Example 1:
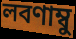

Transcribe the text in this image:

লবণাম্বু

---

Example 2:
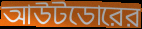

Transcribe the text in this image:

আউটডোরের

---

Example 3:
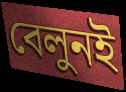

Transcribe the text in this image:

বেলুনই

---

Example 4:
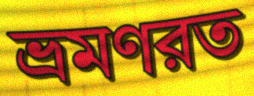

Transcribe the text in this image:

ভ্রমণরত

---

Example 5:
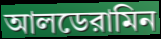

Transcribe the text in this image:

আলডেরামিন